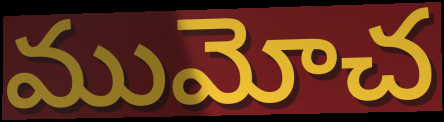
ముమోచ